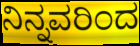
ನಿನ್ನವರಿಂದ